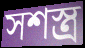
সশস্ত্র